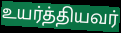
உயர்த்தியவர்